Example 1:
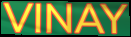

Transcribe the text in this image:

VINAY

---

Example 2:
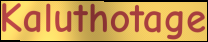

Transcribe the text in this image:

Kaluthotage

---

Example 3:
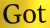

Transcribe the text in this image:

Got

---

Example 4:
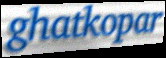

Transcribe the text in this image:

ghatkopar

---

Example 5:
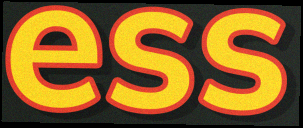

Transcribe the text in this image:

ess